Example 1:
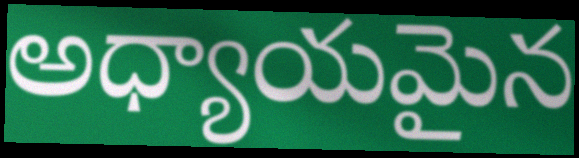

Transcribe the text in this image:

అధ్యాయమైన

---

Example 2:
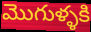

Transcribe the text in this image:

మొగుళ్ళకి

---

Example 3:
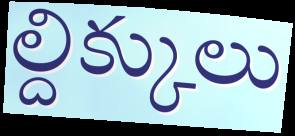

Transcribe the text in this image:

ల్దిక్కులు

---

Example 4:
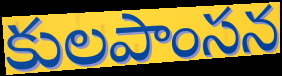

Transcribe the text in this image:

కులపాంసన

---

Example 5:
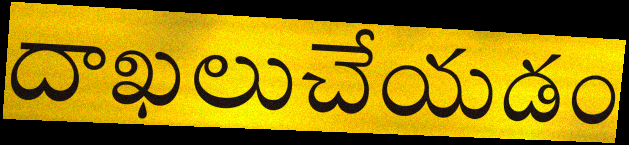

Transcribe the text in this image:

దాఖలుచేయడం